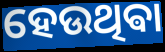
ହେଉଥିଵା